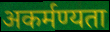
अकर्मण्यता